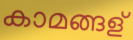
കാമങ്ങള്